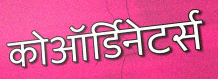
कोऑर्डिनेटर्स